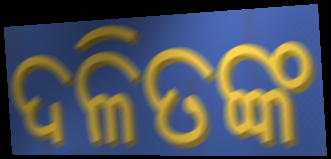
ଦଳିତଙ୍କ